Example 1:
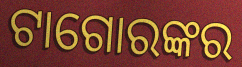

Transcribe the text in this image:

ଟାଗୋରଙ୍କର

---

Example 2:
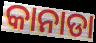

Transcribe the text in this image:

କାନାଡା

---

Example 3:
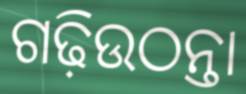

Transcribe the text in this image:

ଗଢ଼ିଉଠନ୍ତା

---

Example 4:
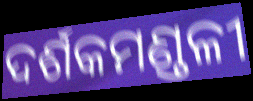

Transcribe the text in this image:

ଦର୍ଶକମଣ୍ଡଳୀ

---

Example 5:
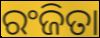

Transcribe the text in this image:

ରଂଜିତା